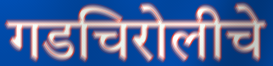
गडचिरोलीचे